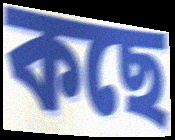
কছে